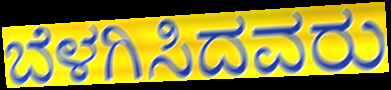
ಬೆಳಗಿಸಿದವರು